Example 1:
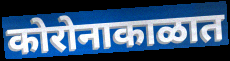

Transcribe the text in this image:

कोरोनाकाळात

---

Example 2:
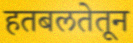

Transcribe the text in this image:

हतबलतेतून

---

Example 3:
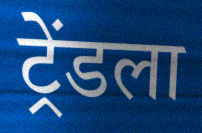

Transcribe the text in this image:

ट्रेंडला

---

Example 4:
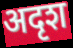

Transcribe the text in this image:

अदृश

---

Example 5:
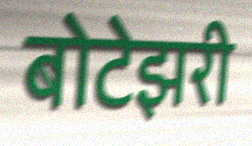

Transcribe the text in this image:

बोटेझरी